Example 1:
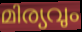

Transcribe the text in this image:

മിര്യവും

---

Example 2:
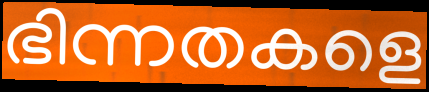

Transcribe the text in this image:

ഭിന്നതകളെ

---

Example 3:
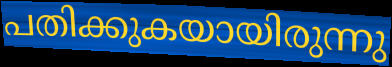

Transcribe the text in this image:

പതിക്കുകയായിരുന്നു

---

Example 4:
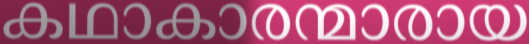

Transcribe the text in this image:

കഥാകാരന്മാരായ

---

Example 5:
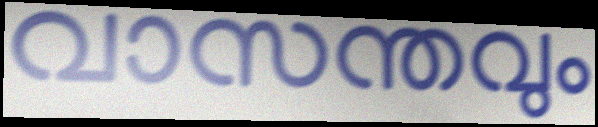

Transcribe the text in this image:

വാസന്തവും